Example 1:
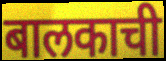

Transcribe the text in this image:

बालकाची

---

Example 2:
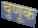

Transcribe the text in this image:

चुणूक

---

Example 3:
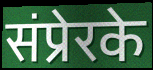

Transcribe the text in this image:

संप्रेरके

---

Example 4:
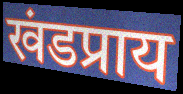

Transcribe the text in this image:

खंडप्राय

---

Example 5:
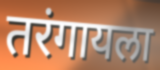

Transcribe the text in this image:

तरंगायला